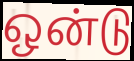
ஒன்டு